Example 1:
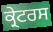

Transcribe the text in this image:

ਕ੍ਰੇਟਰਸ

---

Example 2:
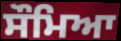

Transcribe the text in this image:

ਸੌਮਿਆ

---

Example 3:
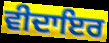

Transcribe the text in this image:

ਵੀਦਾਇਰ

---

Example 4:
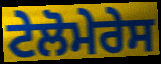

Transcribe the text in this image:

ਟੇਲੋਮੇਰੇਸ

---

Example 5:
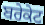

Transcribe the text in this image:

ਬਰੇਕੇਟ